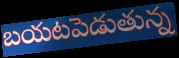
బయటపెడుతున్న